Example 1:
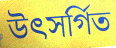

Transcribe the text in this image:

উৎসর্গিত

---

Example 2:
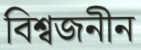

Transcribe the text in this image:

বিশ্বজনীন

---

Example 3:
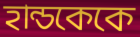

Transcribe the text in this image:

হান্ডকেকে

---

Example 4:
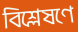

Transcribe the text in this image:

বিশ্লেষণে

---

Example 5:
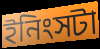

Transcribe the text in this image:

ইনিংসটা